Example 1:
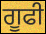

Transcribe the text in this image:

ਗੂਫੀ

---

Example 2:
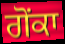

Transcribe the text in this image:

ਗੋਂਕਾ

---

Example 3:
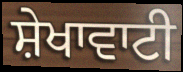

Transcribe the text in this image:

ਸ਼ੇਖਾਵਾਟੀ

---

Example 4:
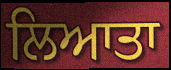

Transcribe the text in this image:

ਲਿਆਤਾ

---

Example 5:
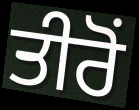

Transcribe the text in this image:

ਤੀਰੋਂ